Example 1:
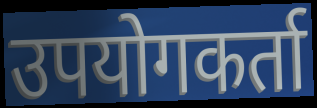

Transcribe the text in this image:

उपयोगकर्ता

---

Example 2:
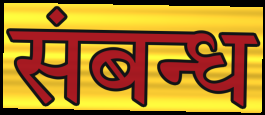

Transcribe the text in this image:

संबन्ध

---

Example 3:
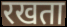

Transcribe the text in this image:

रखता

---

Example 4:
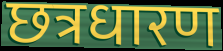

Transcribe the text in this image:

छत्रधारण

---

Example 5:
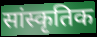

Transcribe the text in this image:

सांस्कृतिक